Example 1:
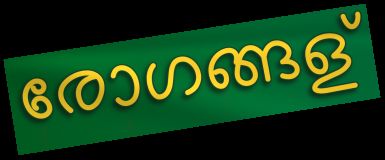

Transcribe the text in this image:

രോഗങ്ങള്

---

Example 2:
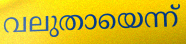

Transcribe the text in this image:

വലുതായെന്ന്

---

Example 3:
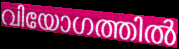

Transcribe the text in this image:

വിയോഗത്തിൽ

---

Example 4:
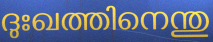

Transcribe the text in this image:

ദുഃഖത്തിനെന്തു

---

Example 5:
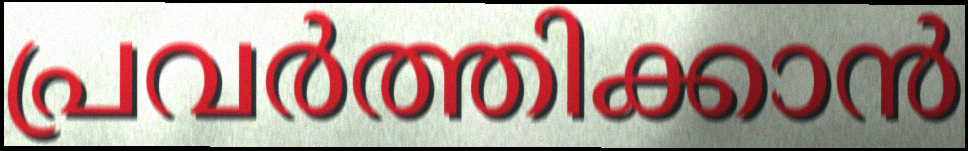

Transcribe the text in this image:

പ്രവർത്തിക്കാൻ